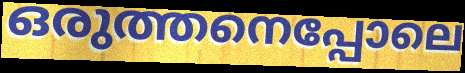
ഒരുത്തനെപ്പോലെ